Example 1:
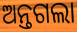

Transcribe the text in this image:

ଅନ୍ତଗଲା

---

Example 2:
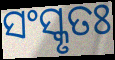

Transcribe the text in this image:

ସଂସ୍କୃତଃ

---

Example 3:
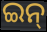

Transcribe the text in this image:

ଇନ୍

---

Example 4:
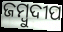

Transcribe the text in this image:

ଜମ୍ବୁଦୀପ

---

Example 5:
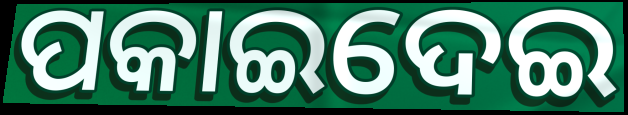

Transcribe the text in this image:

ପକାଇଦେଇ